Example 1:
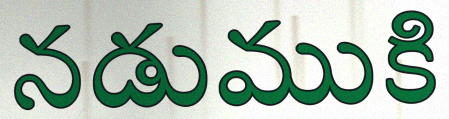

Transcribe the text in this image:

నడుముకి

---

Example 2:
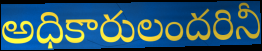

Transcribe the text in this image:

అధికారులందరినీ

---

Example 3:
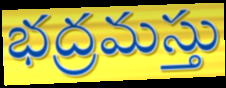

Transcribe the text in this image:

భద్రమస్తు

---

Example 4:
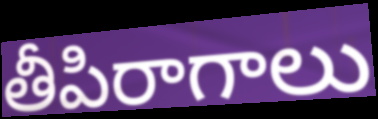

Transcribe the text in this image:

తీపిరాగాలు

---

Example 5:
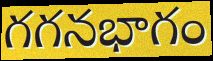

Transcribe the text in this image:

గగనభాగం